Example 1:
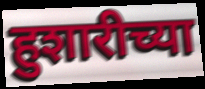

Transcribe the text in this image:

हुशारीच्या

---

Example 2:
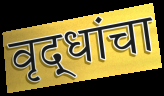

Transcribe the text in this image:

वृद्धांचा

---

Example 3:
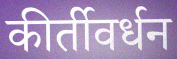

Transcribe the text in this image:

कीर्तीवर्धन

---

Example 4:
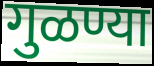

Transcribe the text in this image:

गुळण्या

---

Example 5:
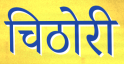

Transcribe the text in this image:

चिठोरी